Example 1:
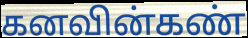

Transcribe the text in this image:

கனவின்கண்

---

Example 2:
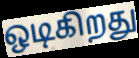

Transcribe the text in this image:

ஒடிகிறது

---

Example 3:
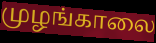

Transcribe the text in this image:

முழங்காலை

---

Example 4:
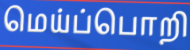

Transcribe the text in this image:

மெய்ப்பொறி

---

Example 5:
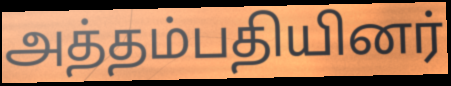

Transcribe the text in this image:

அத்தம்பதியினர்